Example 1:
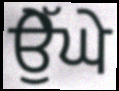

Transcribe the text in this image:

ਉੇੱਘੇ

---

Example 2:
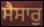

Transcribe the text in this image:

ਸੈਸਾਰੁ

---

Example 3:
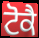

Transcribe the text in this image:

ਟੋਕੈ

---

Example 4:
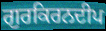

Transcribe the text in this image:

ਗੁਰਕਿਰਨਦੀਪ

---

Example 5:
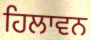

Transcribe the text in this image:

ਹਿਲਾਵਨ